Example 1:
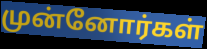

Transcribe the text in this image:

முன்னோர்கள்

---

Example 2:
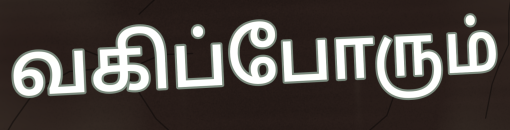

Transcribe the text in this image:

வகிப்போரும்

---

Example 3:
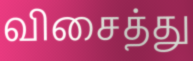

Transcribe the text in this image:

விசைத்து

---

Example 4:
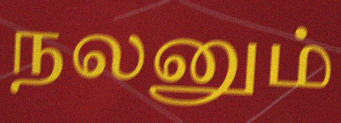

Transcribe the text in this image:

நலனும்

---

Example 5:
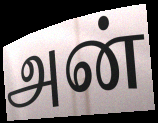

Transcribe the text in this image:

அன்